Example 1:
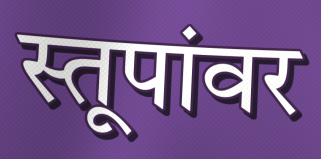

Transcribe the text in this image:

स्तूपांवर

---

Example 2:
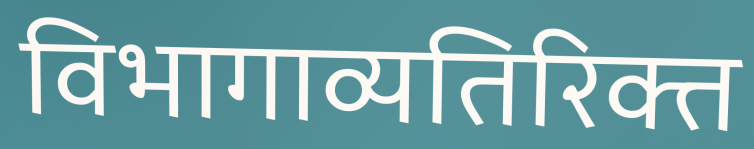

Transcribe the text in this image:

विभागाव्यतिरिक्त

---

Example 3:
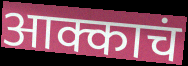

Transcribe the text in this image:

आक्काचं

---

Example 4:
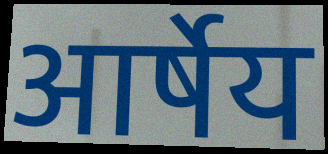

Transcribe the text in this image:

आर्षेय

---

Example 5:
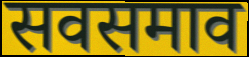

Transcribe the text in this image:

सवसमाव